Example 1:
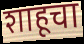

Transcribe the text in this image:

शाहूचा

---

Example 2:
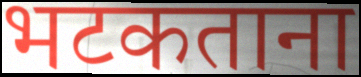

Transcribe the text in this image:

भटकताना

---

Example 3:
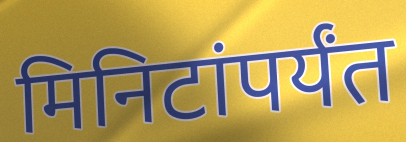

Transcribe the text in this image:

मिनिटांपर्यंत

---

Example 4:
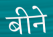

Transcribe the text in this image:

बीने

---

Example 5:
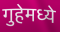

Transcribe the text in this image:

गुहेमध्ये